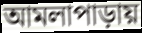
আমলাপাড়ায়